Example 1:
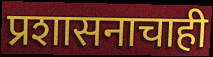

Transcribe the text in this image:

प्रशासनाचाही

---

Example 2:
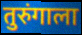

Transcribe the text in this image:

तुरुंगाला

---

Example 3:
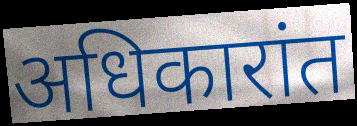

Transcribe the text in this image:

अधिकारांत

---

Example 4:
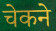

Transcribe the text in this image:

चेकने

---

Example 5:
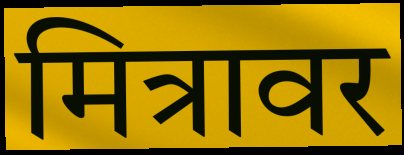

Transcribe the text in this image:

मित्रावर